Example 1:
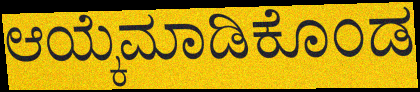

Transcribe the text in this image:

ಆಯ್ಕೆಮಾಡಿಕೊಂಡ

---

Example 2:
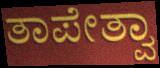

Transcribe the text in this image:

ತಾಪೇತ್ವಾ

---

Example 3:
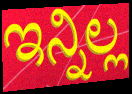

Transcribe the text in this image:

ಇನ್ನಿಲ್ಲ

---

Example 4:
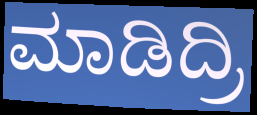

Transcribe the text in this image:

ಮಾಡಿದ್ರಿ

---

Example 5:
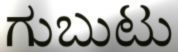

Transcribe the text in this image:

ಗುಬುಟು